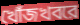
খোঁজখবরে